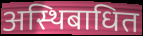
अस्थिबाधित